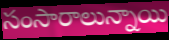
సంసారాలున్నాయి